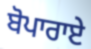
ਬੋਪਾਰਾਏ